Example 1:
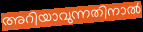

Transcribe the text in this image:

അറിയാവുന്നതിനാൽ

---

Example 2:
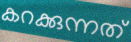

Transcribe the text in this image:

കറക്കുന്നത്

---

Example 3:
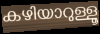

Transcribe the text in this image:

കഴിയാറുള്ളൂ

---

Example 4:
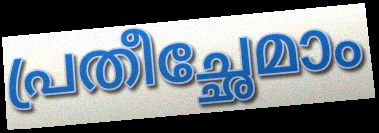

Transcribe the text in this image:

പ്രതീച്ഛേമാം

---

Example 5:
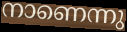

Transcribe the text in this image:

നാണെന്നു